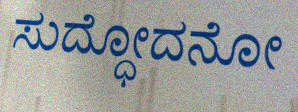
ಸುದ್ಧೋದನೋ